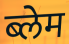
ब्लेम